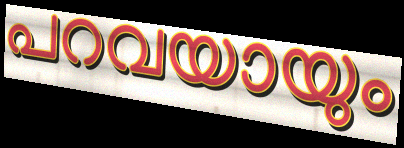
പറവയായും